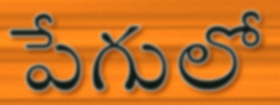
పేగులో